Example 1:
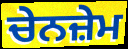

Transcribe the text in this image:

ਚੇਨਜ਼ੇਮ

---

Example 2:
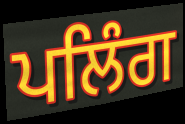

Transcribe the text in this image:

ਪਲਿੰਗ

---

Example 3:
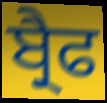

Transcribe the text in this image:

ਬ੍ਰੈਫ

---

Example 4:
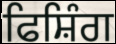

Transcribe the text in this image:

ਫਿਸ਼ਿੰਗ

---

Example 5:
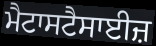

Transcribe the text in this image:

ਮੈਟਾਸਟੈਸਾਈਜ਼